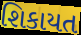
શિકાયત